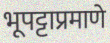
भूपट्टाप्रमाणे